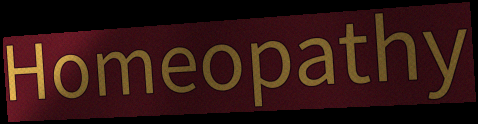
Homeopathy